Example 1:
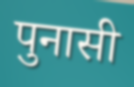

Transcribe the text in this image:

पुनासी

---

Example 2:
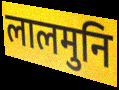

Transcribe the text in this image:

लालमुनि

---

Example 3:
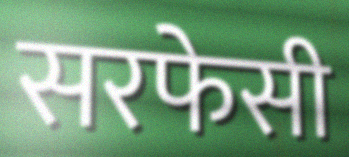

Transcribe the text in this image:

सरफेसी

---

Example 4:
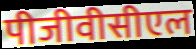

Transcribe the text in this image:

पीजीवीसीएल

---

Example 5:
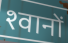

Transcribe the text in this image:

श्वानों